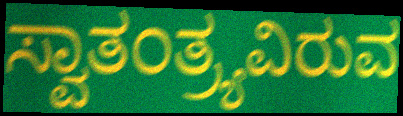
ಸ್ವಾತಂತ್ರ್ಯವಿರುವ